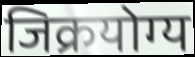
जिक्रयोग्य